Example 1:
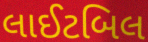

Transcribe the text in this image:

લાઈટબિલ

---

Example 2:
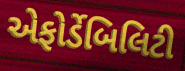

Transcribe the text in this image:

એફોર્ડેબિલિટી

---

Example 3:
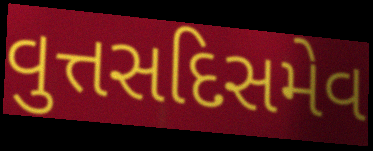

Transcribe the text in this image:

વુત્તસદિસમેવ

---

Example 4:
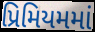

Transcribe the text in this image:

પ્રિમિયમમાં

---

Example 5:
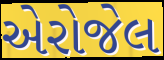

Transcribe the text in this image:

એરોજેલ